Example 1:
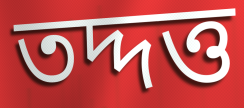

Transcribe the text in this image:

তদ্দত্ত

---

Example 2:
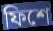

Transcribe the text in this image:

ফিশে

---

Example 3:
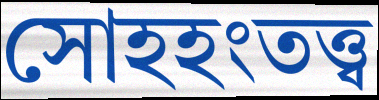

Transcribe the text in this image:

সোহহংতত্ত্ব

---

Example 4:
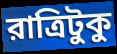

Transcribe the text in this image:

রাত্রিটুকু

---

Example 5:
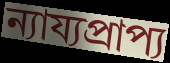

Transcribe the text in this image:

ন্যায্যপ্রাপ্য